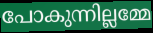
പോകുന്നില്ലമ്മേ